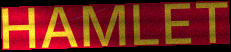
HAMLET